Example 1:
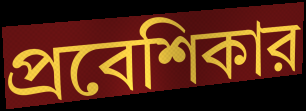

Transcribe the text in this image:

প্রবেশিকার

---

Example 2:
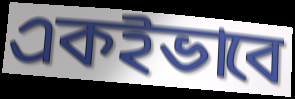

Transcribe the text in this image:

একইভাবে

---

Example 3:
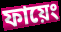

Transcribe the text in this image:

ফায়েং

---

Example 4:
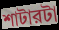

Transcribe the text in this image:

শাটারটা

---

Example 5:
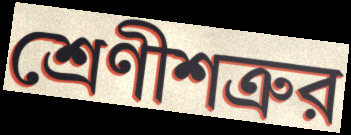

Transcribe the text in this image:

শ্রেণীশত্রুর